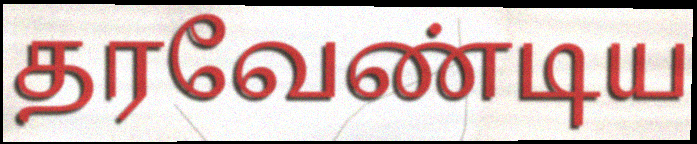
தரவேண்டிய